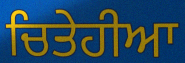
ਚਿਤੇਹੀਆ